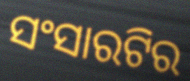
ସଂସାରଟିର